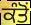
ਕੰਤੋਂ